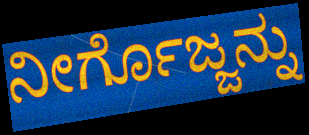
ನೀರ್ಗೊಜ್ಜನ್ನು